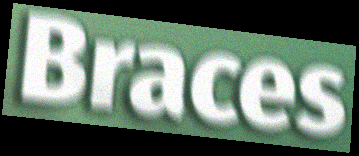
Braces